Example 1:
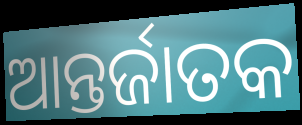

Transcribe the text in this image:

ଆନ୍ତର୍ଜାତକ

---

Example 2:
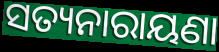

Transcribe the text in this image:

ସତ୍ୟନାରାୟଣା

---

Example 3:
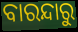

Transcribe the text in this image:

ବାରନ୍ଦାରୁ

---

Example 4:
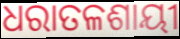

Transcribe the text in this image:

ଧରାତଳଶାୟୀ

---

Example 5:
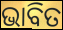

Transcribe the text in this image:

ଭାବିତ